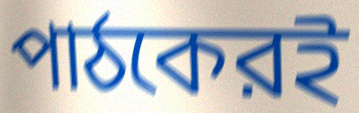
পাঠকেরই